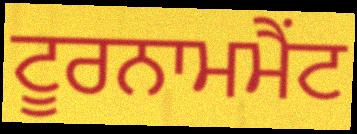
ਟੂਰਨਾਮਮੈਂਟ